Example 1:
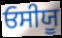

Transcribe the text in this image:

ਓਸੀਯੂ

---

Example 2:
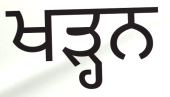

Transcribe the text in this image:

ਖੜ੍ਹਨ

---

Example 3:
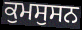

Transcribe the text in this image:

ਕੁਮਸੁਸਨ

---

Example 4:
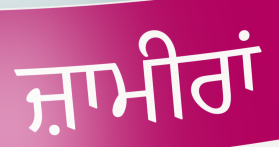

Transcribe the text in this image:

ਜ਼ਾਮੀਰਾਂ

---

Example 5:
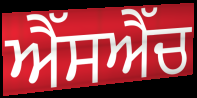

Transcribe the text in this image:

ਐੱਸਐੱਚ